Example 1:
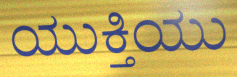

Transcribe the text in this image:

ಯುಕ್ತಿಯು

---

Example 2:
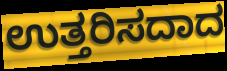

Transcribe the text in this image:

ಉತ್ತರಿಸದಾದ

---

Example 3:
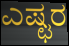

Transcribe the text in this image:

ಎಷ್ಟರ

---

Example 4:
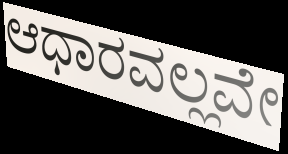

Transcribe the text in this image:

ಆಧಾರವಲ್ಲವೇ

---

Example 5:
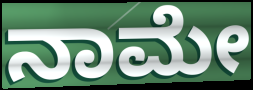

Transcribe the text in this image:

ನಾಮೇ